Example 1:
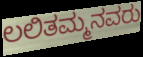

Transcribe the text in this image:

ಲಲಿತಮ್ಮನವರು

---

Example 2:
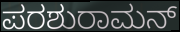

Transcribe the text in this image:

ಪರಶುರಾಮನ್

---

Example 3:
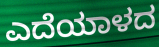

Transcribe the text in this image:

ಎದೆಯಾಳದ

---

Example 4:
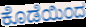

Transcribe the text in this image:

ಕೊಡೆಯಿಂದ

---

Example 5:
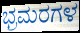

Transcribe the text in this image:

ಭ್ರಮರಗಳ